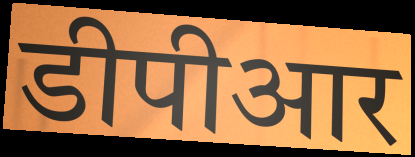
डीपीआर